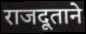
राजदूताने